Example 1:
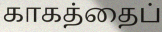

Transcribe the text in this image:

காகத்தைப்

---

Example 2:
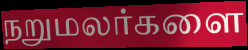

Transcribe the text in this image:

நறுமலர்களை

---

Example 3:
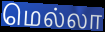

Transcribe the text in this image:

மெல்லா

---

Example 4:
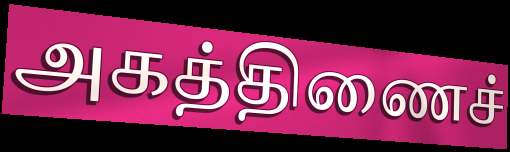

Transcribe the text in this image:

அகத்திணைச்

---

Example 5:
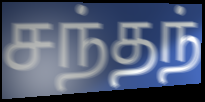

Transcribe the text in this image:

சந்தந்